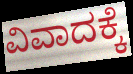
ವಿವಾದಕ್ಕೆ